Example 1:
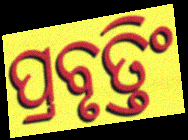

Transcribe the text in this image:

ପ୍ରବୃତ୍ତିଂ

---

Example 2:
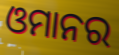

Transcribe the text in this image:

ଓମାନର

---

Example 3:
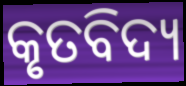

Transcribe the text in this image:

କୃତବିଦ୍ଯ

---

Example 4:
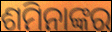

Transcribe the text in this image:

ଶମିନାଙ୍କର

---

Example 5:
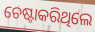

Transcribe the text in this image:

ଚେଷ୍ଟାକରିଥିଲେ